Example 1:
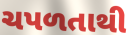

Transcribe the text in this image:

ચપળતાથી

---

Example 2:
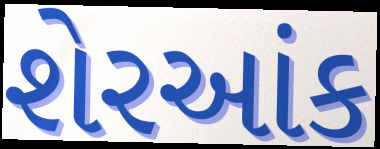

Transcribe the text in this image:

શેરઆંક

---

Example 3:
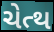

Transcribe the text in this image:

ચેત્થ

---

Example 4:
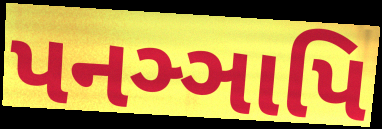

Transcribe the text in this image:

પનઞ્ઞાપિ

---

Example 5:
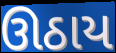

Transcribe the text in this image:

ઊઠાય